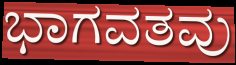
ಭಾಗವತವು